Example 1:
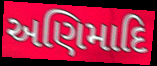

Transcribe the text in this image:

અણિમાદિ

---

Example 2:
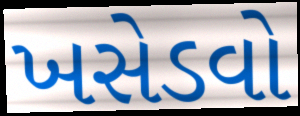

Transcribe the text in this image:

ખસેડવો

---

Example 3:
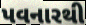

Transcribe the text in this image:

પવનારથી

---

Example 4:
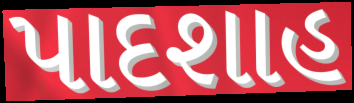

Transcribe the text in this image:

પાદશાહ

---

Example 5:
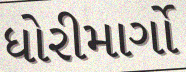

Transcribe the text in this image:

ધોરીમાર્ગો